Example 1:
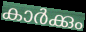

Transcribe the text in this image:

കാർക്കും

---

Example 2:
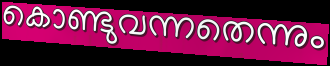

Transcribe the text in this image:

കൊണ്ടുവന്നതെന്നും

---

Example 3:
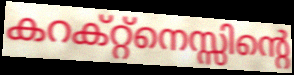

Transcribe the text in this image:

കറക്റ്റ്നെസ്സിന്റെ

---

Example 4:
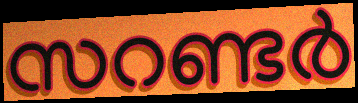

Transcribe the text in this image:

സറണ്ടർ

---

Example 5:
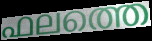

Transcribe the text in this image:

ഫലത്തെ